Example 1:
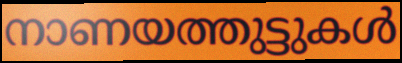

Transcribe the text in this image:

നാണയത്തുട്ടുകൾ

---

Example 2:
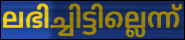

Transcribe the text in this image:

ലഭിച്ചിട്ടില്ലെന്ന്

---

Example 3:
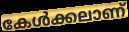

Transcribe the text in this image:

കേൾക്കലാണ്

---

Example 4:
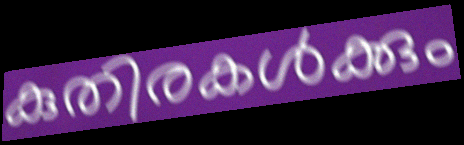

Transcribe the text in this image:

കുതിരകൾക്കും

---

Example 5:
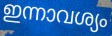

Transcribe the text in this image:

ഇന്നാവശ്യം